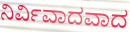
ನಿರ್ವಿವಾದವಾದ